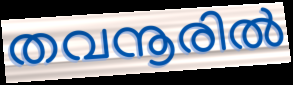
തവനൂരിൽ